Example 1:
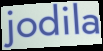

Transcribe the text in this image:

jodila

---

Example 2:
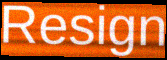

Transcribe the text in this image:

Resign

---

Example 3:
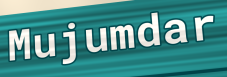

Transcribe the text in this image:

Mujumdar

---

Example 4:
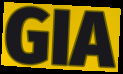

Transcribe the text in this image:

GIA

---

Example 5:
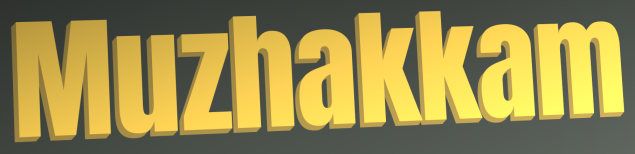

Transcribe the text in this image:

Muzhakkam